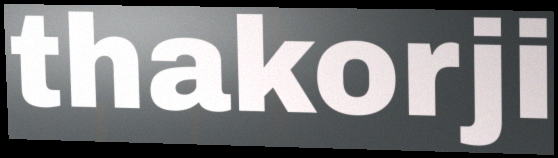
thakorji